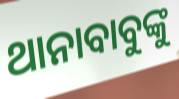
ଥାନାବାବୁଙ୍କୁ